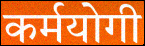
कर्मयोगी